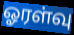
ஓரள்வு